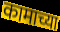
कामाच्या